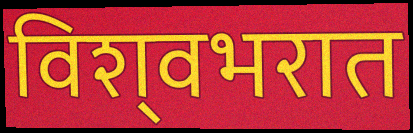
विश्वभरात